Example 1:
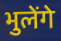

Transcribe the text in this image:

भुलेंगे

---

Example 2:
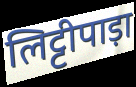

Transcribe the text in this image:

लिट्टीपाड़ा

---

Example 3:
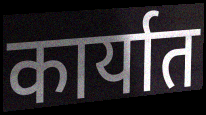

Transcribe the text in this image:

कार्यात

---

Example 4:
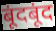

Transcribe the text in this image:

बूंदबूंद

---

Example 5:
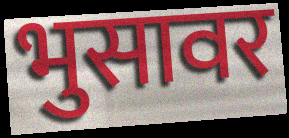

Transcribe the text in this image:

भुसावर